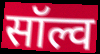
सॉल्व